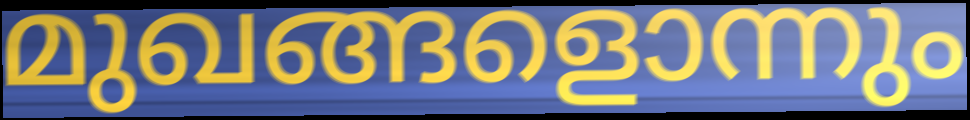
മുഖങ്ങളൊന്നും